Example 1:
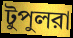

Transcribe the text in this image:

টুপুলরা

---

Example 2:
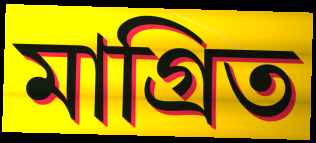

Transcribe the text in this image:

মাগ্রিত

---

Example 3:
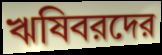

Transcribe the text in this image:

ঋষিবরদের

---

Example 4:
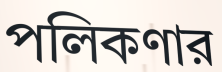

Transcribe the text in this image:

পলিকণার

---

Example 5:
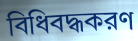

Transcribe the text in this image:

বিধিবদ্ধকরণ